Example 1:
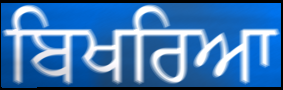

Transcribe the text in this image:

ਬਿਖਰਿਆ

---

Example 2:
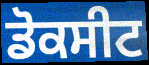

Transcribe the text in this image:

ਡੋਕਸੀਟ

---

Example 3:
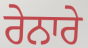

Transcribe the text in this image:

ਰੇਨਾਰੇ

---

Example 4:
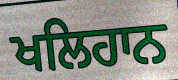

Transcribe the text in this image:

ਖਲਿਹਾਨ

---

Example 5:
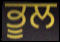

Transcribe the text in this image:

ਭੂਲ